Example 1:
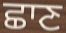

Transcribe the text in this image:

ਛਾਣ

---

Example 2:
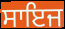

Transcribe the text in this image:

ਸਾਇਜ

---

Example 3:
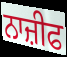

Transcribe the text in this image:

ਨਾਜ਼ੀਫ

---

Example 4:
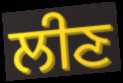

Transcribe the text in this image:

ਲੀਣ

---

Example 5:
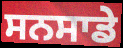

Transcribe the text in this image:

ਸਨਸਾਡੇ